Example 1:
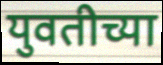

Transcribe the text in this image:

युवतीच्या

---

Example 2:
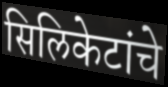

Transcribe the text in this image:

सिलिकेटांचे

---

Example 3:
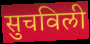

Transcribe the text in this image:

सुचविली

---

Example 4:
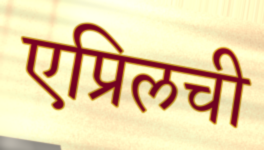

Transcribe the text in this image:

एप्रिलची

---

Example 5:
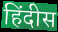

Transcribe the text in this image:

हिंदीस